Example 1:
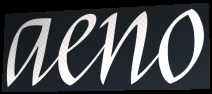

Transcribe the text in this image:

aeno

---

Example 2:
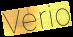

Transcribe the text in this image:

Verio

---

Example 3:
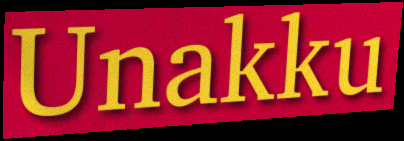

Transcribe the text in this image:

Unakku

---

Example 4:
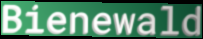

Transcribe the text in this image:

Bienewald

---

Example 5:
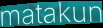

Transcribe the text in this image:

matakun